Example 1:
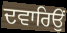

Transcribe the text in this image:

ਦਵਾਰਿਉਂ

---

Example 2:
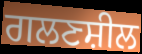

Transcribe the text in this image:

ਗਲਣਸ਼ੀਲ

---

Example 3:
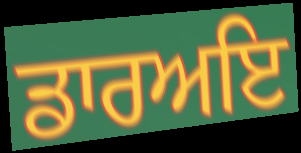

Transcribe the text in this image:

ਡਾਰਅਇ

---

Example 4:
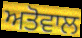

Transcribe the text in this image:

ਅਤੋਵਾਲ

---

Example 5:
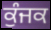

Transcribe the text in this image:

ਕੁੰਜਕ